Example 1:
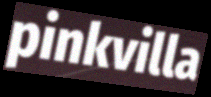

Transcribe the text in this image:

pinkvilla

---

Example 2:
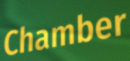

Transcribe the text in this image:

Chamber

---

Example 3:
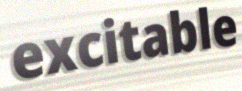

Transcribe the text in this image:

excitable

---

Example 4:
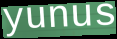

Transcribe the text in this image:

yunus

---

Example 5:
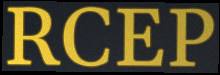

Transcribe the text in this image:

RCEP